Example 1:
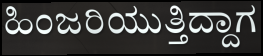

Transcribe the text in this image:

ಹಿಂಜರಿಯುತ್ತಿದ್ದಾಗ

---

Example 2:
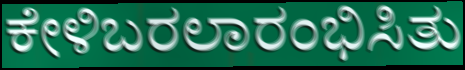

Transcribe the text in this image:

ಕೇಳಿಬರಲಾರಂಭಿಸಿತು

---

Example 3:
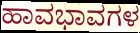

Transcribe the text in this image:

ಹಾವಭಾವಗಳ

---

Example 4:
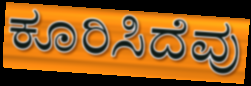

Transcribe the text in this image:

ಕೂರಿಸಿದೆವು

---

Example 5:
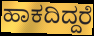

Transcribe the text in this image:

ಹಾಕದಿದ್ದರೆ